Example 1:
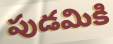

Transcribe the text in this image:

పుడమికి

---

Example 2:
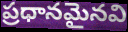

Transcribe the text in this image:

ప్రధానమైనవి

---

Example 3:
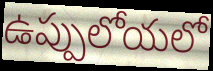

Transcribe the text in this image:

ఉప్పులోయలో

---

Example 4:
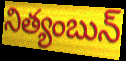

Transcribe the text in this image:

నిత్యంబున్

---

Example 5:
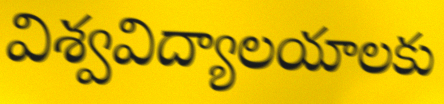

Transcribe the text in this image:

విశ్వవిద్యాలయాలకు